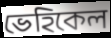
ভেহিকেল